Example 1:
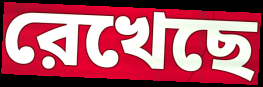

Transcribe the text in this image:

রেখেছে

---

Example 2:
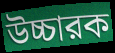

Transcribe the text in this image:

উচ্চারক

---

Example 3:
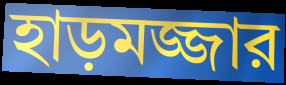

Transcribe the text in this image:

হাড়মজ্জার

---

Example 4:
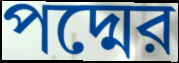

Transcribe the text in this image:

পদ্মের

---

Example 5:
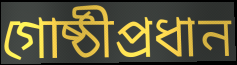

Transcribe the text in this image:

গোষ্ঠীপ্রধান